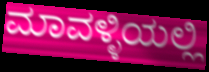
ಮಾವಳ್ಳಿಯಲ್ಲಿ